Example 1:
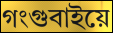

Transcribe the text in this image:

গংগুবাইয়ে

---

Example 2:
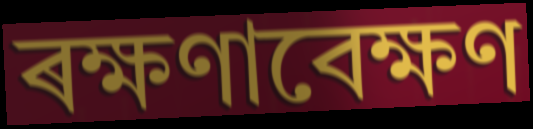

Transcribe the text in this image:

ৰক্ষণাবেক্ষণ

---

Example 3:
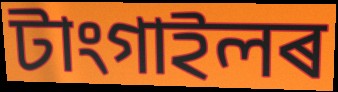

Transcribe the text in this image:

টাংগাইলৰ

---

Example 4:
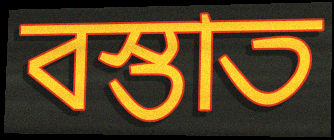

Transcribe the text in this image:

বস্তাত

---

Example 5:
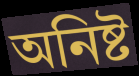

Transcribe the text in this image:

অনিষ্ট